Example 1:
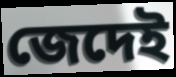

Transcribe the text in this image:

জেদেই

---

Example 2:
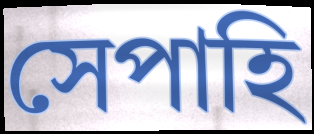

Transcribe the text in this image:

সেপাহি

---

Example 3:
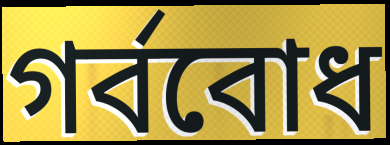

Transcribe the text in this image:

গর্ববোধ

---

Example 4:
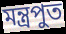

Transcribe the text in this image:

মন্ত্রপুত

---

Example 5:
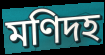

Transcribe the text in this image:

মণিদহ